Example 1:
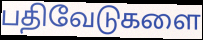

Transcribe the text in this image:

பதிவேடுகளை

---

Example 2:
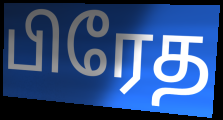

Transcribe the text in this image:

பிரேத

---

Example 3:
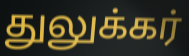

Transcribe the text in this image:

துலுக்கர்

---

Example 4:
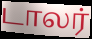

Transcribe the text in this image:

டாலர்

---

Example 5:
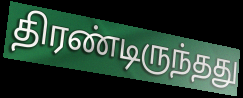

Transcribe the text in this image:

திரண்டிருந்தது